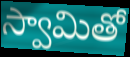
స్వామితో